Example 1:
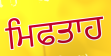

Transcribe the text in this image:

ਮਿਫਤਾਹ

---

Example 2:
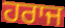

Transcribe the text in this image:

ਹਰਾਜ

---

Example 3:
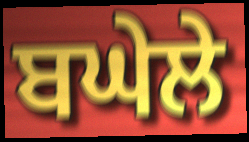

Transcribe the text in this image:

ਬਘੇਲੇ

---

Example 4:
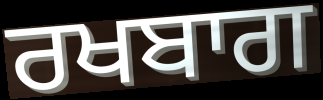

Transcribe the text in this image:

ਰਖਬਾਗ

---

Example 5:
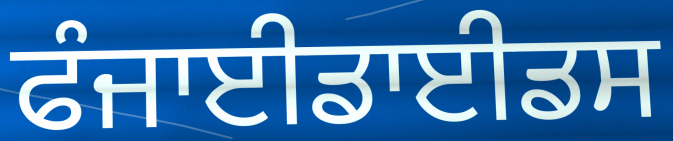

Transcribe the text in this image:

ਫੰਜਾਈਡਾਈਡਸ